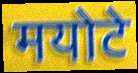
मयोटे